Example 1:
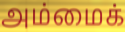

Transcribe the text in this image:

அம்மைக்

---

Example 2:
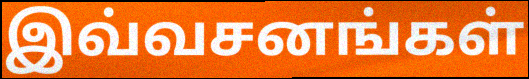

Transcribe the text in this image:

இவ்வசனங்கள்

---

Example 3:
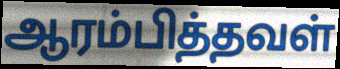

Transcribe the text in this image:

ஆரம்பித்தவள்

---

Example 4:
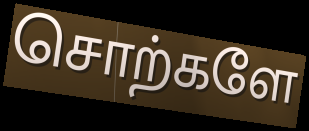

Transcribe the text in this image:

சொற்களே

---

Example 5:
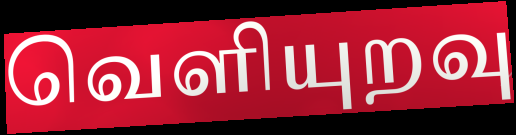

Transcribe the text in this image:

வெளியுறவு